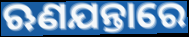
ଋଣଯନ୍ତାରେ